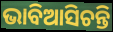
ଭାବିଆସିଚନ୍ତି